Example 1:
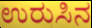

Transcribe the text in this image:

ಉರುಸಿನ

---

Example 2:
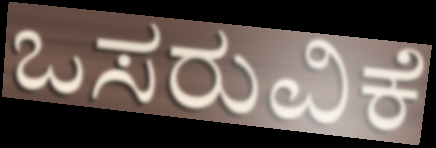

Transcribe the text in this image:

ಒಸರುವಿಕೆ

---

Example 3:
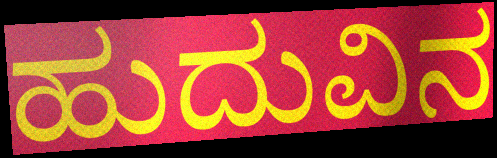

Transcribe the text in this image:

ಹುದುವಿನ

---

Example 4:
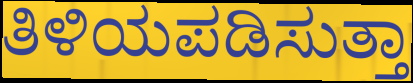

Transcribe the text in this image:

ತಿಳಿಯಪಡಿಸುತ್ತಾ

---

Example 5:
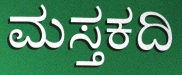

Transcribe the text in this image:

ಮಸ್ತಕದಿ